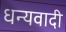
धन्यवादी